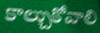
కాల్చుకోవాలి